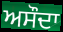
ਅਸੌਦਾ